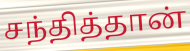
சந்தித்தான்